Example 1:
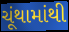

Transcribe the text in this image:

ચૂંથામાંથી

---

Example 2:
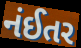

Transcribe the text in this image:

નંઈતર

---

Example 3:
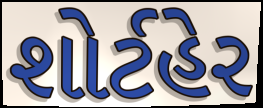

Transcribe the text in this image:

શોર્ટહેર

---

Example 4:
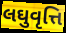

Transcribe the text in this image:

લઘુવૃત્તિ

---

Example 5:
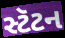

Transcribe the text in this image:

સ્ટૅટન